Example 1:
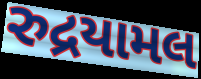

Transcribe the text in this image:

રુદ્રયામલ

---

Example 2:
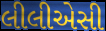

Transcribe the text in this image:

લીલીએસી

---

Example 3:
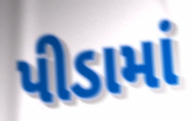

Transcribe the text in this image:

પીડામાં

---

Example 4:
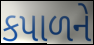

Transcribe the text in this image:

કપાળને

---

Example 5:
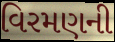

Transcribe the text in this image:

વિરમણની